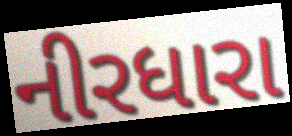
નીરધારા